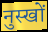
नुस्खों